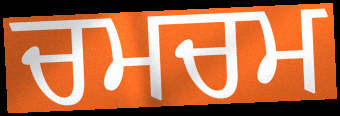
ਚਮਚਮ